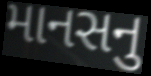
માનસનુ